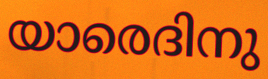
യാരെദിനു